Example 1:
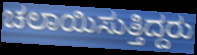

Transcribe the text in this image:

ಚಲಾಯಿಸುತ್ತಿದ್ದರು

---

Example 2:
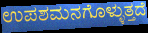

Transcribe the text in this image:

ಉಪಶಮನಗೊಳ್ಳುತ್ತದೆ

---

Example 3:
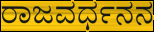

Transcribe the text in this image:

ರಾಜವರ್ಧನನ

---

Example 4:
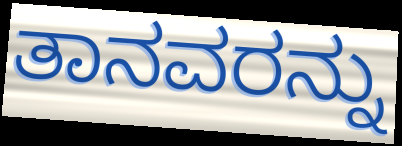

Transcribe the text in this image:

ತಾನವರನ್ನು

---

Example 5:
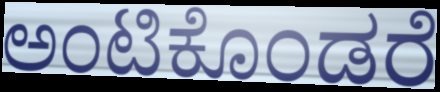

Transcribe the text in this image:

ಅಂಟಿಕೊಂಡರೆ